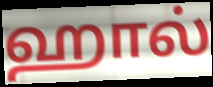
ஹால்